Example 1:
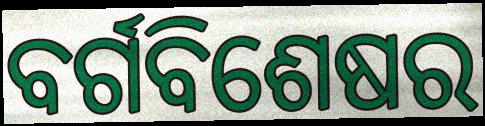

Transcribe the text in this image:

ବର୍ଗବିଶେଷର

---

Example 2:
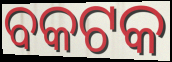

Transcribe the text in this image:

ବକଟକ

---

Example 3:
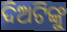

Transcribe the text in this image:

ଦିଅଟିଙ୍କୁ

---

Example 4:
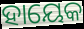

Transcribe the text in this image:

ହାୟେକ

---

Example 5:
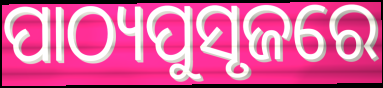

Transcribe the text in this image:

ପାଠ୍ୟପୁସୃଜରେ